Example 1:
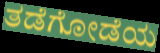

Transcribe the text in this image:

ತಡೆಗೋಡೆಯ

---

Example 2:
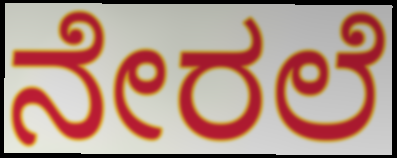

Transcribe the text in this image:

ನೇರಲೆ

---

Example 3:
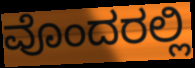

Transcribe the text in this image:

ವೊಂದರಲ್ಲಿ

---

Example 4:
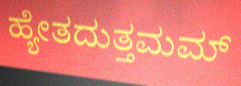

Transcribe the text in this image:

ಹ್ಯೇತದುತ್ತಮಮ್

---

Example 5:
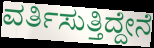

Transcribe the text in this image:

ವರ್ತಿಸುತ್ತಿದ್ದೇನೆ